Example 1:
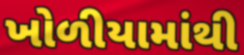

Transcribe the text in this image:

ખોળીયામાંથી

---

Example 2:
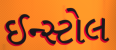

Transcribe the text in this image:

ઈન્સ્ટોલ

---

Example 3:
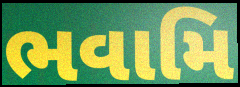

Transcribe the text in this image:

ભવામિ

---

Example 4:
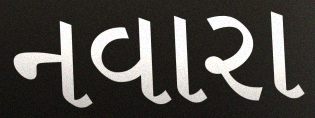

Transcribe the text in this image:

નવારા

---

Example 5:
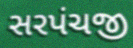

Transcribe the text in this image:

સરપંચજી